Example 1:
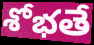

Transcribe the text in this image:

శోభతే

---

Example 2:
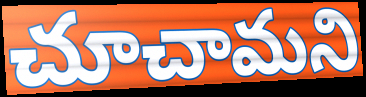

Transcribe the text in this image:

చూచామని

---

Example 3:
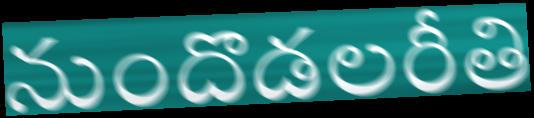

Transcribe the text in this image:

నుందొడలరీతి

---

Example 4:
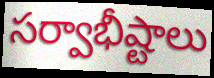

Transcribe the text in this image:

సర్వాభీష్టాలు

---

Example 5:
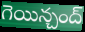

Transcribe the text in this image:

గెయిన్చంద్